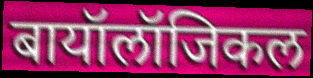
बायॉलॉजिकल